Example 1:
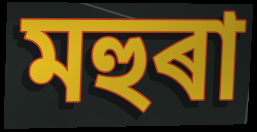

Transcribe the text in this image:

মহুৰা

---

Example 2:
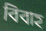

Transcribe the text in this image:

বিবাহ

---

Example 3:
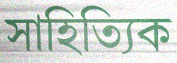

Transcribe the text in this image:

সাহিত্যিক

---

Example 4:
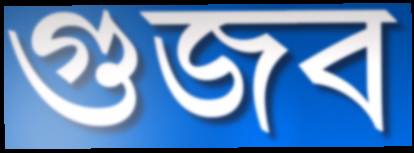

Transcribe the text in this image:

গুজব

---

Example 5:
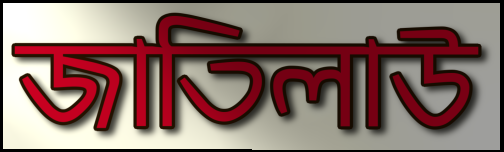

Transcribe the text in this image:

জাতিলাউ